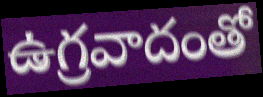
ఉగ్రవాదంతో